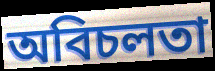
অবিচলতা